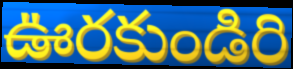
ఊరకుండిరి